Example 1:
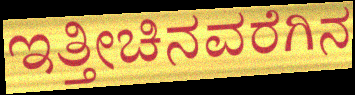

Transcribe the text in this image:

ಇತ್ತೀಚಿನವರೆಗಿನ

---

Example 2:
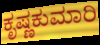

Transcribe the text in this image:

ಕೃಷ್ಣಕುಮಾರಿ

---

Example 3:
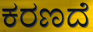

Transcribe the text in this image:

ಕರಣದೆ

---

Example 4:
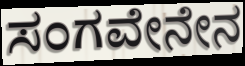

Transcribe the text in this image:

ಸಂಗವೇನೇನ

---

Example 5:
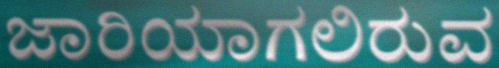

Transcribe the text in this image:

ಜಾರಿಯಾಗಲಿರುವ